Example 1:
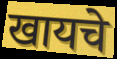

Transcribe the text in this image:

खायचे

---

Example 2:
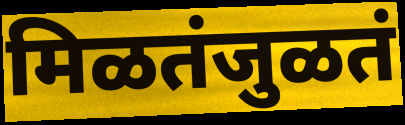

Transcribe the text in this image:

मिळतंजुळतं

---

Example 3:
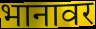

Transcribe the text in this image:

भानावर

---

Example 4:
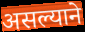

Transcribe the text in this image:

असल्‍याने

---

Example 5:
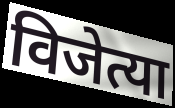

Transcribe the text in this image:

विजेत्या